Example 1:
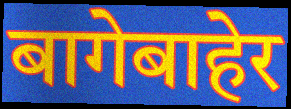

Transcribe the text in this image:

बागेबाहेर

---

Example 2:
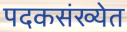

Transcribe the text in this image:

पदकसंख्येत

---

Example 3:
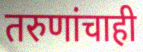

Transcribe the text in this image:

तरुणांचाही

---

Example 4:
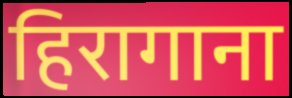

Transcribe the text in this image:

हिरागाना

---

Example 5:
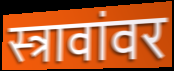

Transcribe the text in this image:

स्त्रावांवर